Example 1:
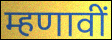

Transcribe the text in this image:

म्हणावीं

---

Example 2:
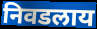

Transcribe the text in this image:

निवडलाय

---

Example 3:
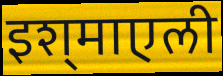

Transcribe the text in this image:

इश्माएली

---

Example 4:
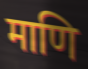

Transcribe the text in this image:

माणि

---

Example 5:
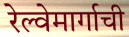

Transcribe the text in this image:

रेल्वेमार्गाची